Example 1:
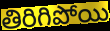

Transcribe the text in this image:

తిరిగిపోయి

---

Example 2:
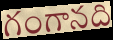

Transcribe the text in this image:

గంగానది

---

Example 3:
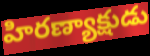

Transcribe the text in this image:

హిరణ్యాక్షుడు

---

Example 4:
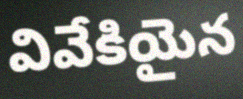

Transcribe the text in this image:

వివేకియైన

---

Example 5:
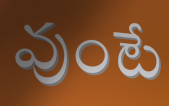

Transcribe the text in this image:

వుంటే